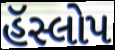
હૅસ્લોપ